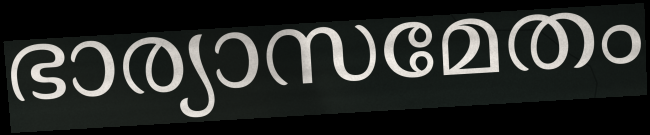
ഭാര്യാസമേതം